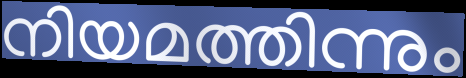
നിയമത്തിന്നും